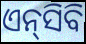
ଏନ୍‌ସିବି